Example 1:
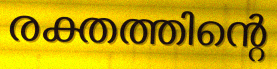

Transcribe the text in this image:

രക്തത്തിന്റെ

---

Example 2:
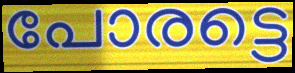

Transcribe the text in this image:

പോരട്ടെ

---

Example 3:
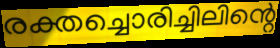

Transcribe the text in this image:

രക്തച്ചൊരിച്ചിലിന്റെ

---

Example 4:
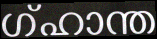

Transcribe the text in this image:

ഗ്ഹാന്ത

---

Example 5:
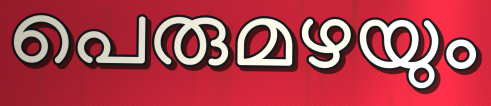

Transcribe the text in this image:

പെരുമഴയും